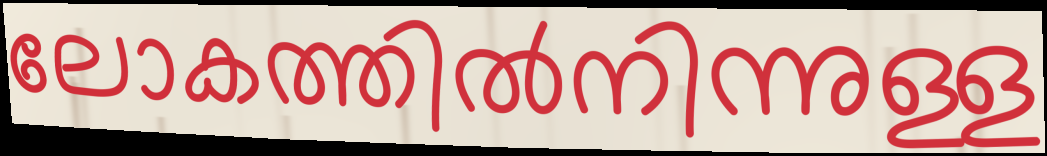
ലോകത്തിൽനിന്നുള്ള